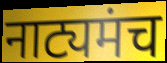
नाट्यमंच